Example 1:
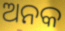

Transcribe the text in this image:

ଅନକ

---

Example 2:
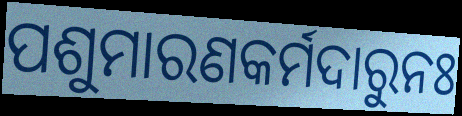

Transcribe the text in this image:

ପଶୁମାରଣକର୍ମଦାରୁନଃ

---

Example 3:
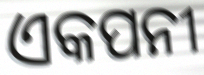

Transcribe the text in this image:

ଏକପନୀ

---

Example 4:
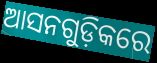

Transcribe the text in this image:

ଆସନଗୁଡ଼ିକରେ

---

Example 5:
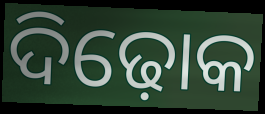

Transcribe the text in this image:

ଦିଢ଼ୋକ